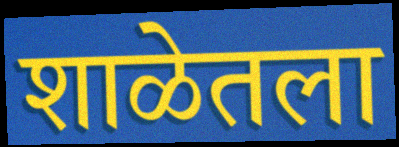
शाळेतला